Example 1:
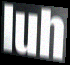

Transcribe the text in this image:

luh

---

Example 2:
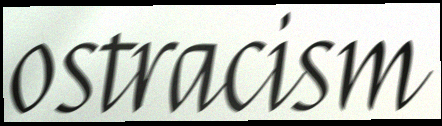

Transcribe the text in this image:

ostracism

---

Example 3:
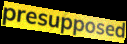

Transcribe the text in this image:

presupposed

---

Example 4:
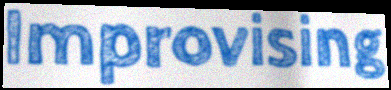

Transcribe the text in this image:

Improvising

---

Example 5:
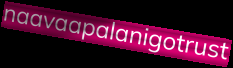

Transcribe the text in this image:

naavaapalanigotrust